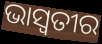
ଭାସ୍ୱତୀର